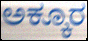
ಅಕ್ಕೂರ